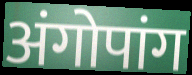
अंगोपांग